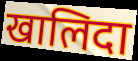
खालिदा